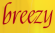
breezy